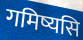
गमिष्यसि